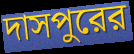
দাসপুরের